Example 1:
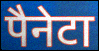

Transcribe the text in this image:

पैनेटा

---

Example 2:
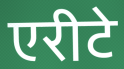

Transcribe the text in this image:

एरीटे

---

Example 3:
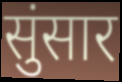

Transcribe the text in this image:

सुंसार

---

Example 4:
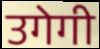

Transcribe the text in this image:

उगेगी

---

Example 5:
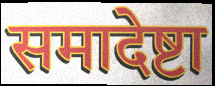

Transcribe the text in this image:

समादेष्टा